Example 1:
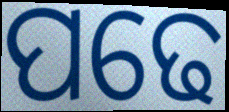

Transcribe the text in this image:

ପଢେ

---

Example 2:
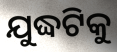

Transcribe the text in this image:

ଯୁଦ୍ଧଟିକୁ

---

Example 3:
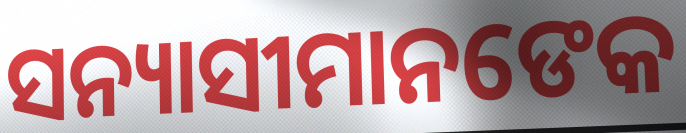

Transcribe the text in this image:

ସନ୍ୟାସୀମାନଙେକ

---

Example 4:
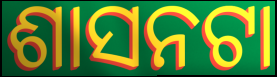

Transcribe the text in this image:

ଶାସନଟା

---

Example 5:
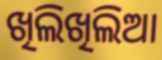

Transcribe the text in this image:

ଖିଲିଖିଲିଆ